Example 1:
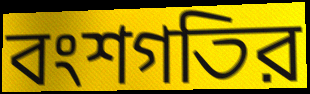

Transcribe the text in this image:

বংশগতির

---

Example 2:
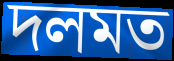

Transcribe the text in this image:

দলমত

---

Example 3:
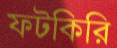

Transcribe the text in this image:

ফটকিরি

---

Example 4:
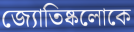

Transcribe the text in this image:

জ্যোতিষ্কলোকে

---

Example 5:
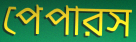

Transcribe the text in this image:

পেপারস